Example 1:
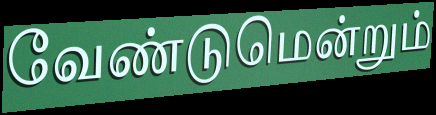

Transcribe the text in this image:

வேண்டுமென்றும்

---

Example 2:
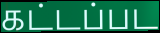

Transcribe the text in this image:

கட்டப்பட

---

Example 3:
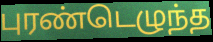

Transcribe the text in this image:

புரண்டெழுந்த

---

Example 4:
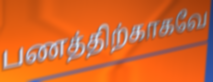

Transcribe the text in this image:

பணத்திற்காகவே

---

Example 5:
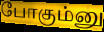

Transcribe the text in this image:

போகும்னு